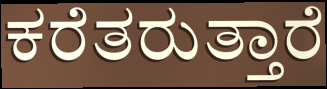
ಕರೆತರುತ್ತಾರೆ